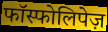
फॉस्फोलिपेज़